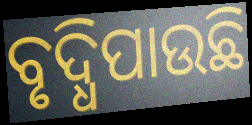
ବୃଦ୍ଧିପାଉଛି